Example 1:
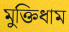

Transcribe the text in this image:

মুক্তিধাম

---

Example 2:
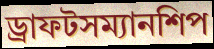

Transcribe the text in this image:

ড্রাফটসম্যানশিপ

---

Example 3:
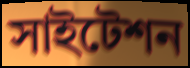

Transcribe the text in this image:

সাইটেশন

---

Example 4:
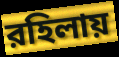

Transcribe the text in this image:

রহিলায়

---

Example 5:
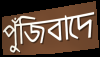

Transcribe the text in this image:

পুঁজিবাদে